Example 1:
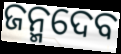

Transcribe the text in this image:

ଜନ୍ମଦେବ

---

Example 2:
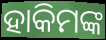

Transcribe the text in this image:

ହାକିମଙ୍କ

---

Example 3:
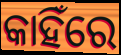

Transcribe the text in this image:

କାହିଁରେ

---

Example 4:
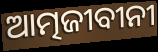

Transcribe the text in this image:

ଆତ୍ମଜୀବୀନୀ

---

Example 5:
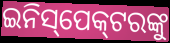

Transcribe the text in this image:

ଇନିସ୍‌ପେକ୍‍ଟରଙ୍କୁ